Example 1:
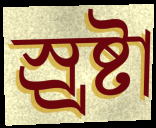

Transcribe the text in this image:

স্র্রষ্টা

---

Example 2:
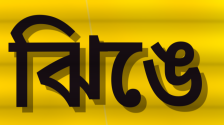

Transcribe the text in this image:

ঝিঙে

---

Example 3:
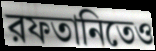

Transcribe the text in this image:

রফতানিতেও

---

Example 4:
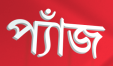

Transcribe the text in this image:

প্যাঁজ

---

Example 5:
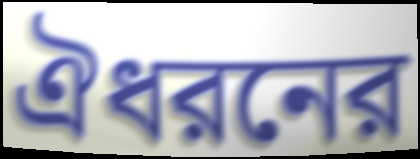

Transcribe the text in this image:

ঐধরনের